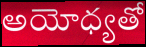
అయోధ్యతో